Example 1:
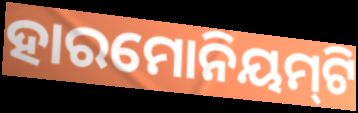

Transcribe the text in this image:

ହାରମୋନିୟମ୍‍ଟି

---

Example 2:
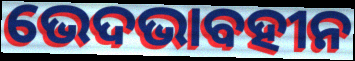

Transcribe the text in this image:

ଭେଦଭାବହୀନ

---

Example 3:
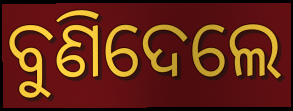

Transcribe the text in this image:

ବୁଣିଦେଲେ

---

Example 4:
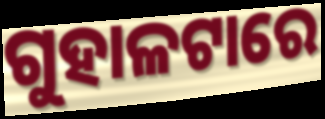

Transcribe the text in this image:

ଗୁହାଳଟାରେ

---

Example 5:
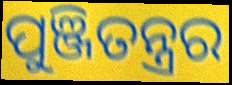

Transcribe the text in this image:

ପୁଞ୍ଜିତନ୍ତ୍ରର